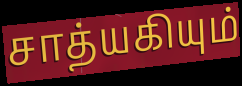
சாத்யகியும்